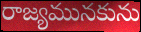
రాజ్యమునకును